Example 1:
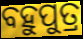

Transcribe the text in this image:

ବହୁପୁତ୍ର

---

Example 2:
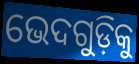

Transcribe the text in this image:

ଭେଦଗୁଡ଼ିକୁ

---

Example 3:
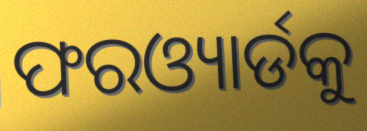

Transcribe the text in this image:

ଫରଓ୍ୟାର୍ଡକୁ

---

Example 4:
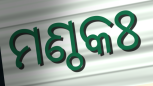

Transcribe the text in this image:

ମଣ୍ଠକଃ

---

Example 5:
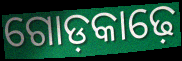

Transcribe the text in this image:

ଗୋଡ଼କାଢ଼େ